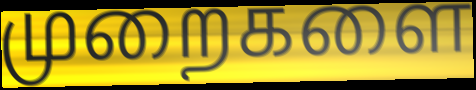
முறைகளை